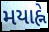
મયાહ્ને